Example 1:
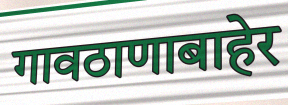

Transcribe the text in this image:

गावठाणाबाहेर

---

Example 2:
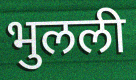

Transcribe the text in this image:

भुलली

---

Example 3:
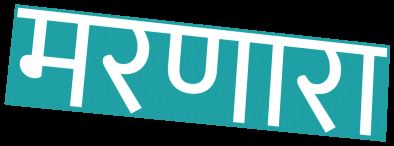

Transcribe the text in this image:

मरणारा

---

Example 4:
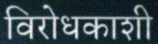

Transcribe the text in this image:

विरोधकाशी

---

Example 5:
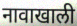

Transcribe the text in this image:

नावाखाली